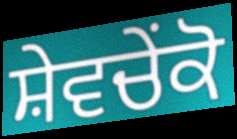
ਸ਼ੇਵਚੇਂਕੋ